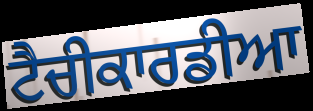
ਟੈਚੀਕਾਰਡੀਆ